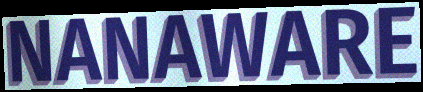
NANAWARE